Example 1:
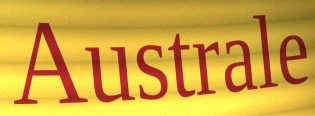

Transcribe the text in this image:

Australe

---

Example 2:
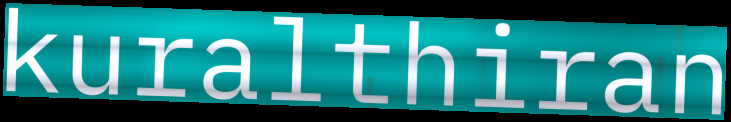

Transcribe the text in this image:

kuralthiran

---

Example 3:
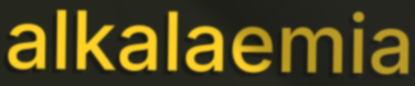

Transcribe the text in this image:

alkalaemia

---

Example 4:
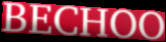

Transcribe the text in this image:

BECHOO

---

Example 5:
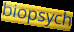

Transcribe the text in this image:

biopsych